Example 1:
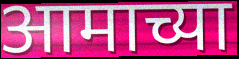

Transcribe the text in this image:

आमाच्या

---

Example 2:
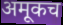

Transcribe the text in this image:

अमूकच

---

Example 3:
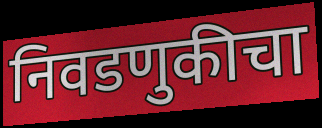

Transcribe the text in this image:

निवडणुकीचा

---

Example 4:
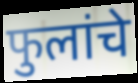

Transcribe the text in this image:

फुलांचे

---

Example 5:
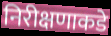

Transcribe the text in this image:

निरीक्षणाकडे